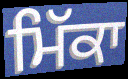
ਮਿੱਕਾ